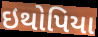
ઇથોપિયા